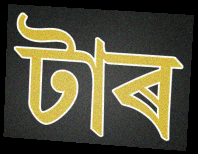
টাৰ